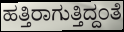
ಹತ್ತಿರಾಗುತ್ತಿದ್ದಂತೆ